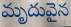
మృదువైన